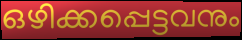
ഒഴിക്കപ്പെട്ടവനും